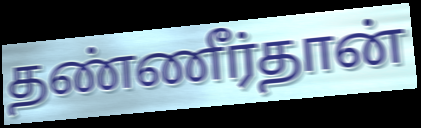
தண்ணீர்தான்